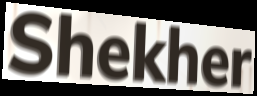
Shekher